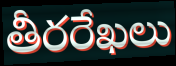
తీరరేఖలు